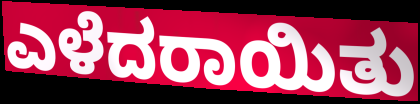
ಎಳೆದರಾಯಿತು